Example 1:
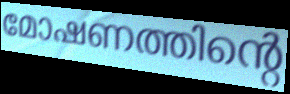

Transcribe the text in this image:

മോഷണത്തിന്റെ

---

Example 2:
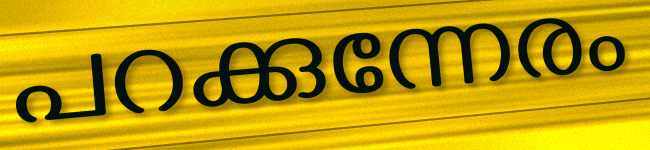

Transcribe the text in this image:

പറക്കുന്നേരം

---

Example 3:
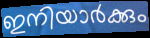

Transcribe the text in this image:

ഇനിയാർക്കും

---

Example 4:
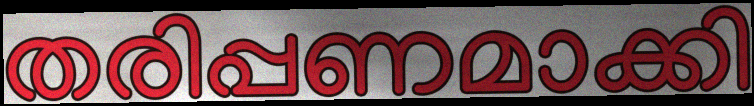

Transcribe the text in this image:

തരിപ്പണമാക്കി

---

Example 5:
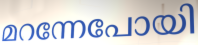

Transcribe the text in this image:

മറന്നേപോയി